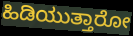
ಹಿಡಿಯುತ್ತಾರೋ